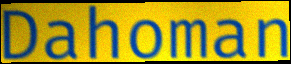
Dahoman